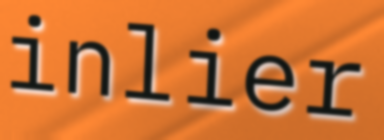
inlier